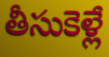
తీసుకెళ్లే